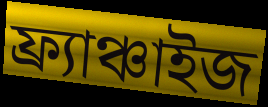
ফ্র্যাঞ্চাইজ